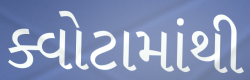
ક્વોટામાંથી